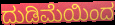
ದುಡಿಮೆಯಿಂದ